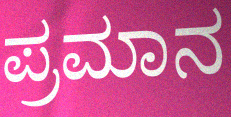
ಪ್ರಮಾನ